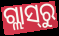
ଗ୍ଲାସ୍‍ରୁ